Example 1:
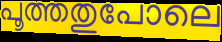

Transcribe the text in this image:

പൂത്തതുപോലെ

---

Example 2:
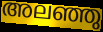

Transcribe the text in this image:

അലഞ്ഞു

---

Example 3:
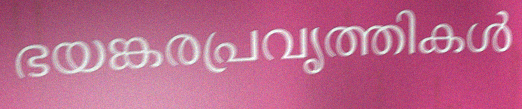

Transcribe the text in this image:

ഭയങ്കരപ്രവൃത്തികൾ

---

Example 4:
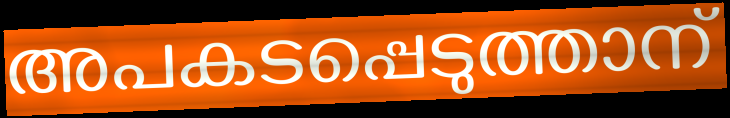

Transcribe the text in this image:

അപകടപ്പെടുത്താന്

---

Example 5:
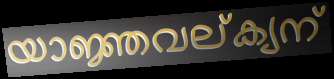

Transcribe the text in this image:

യാജ്ഞവല്ക്യന്